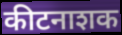
कीटनाशक